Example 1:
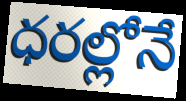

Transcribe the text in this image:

ధరల్లోనే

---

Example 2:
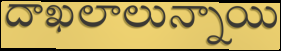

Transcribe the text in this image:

దాఖలాలున్నాయి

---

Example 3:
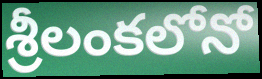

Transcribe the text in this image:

శ్రీలంకలోనో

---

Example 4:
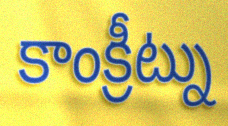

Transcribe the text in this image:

కాంక్రీట్ను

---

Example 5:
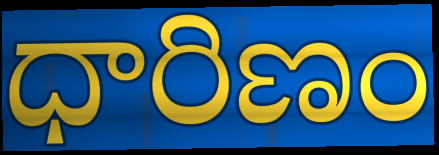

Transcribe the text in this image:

ధారిణం